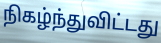
நிகழ்ந்துவிட்டது